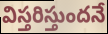
విస్తరిస్తుందనే